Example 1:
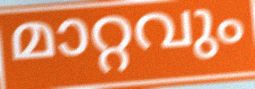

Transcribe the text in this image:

മാറ്റവും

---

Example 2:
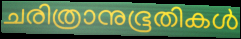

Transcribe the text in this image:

ചരിത്രാനുഭൂതികൾ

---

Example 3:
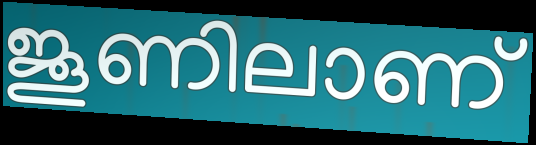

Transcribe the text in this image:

ജൂണിലാണ്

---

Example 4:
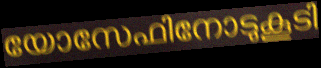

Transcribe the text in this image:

യോസേഫിനോടുകൂടി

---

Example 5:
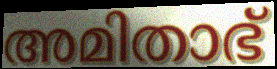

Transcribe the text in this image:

അമിതാഭ്